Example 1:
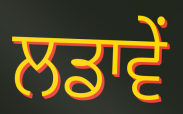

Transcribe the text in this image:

ਲਡਾਵੇਂ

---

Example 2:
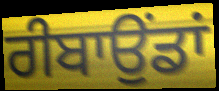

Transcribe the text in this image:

ਰੀਬਾਉਂਡਾਂ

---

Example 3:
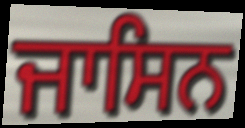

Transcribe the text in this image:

ਜਾਸਿਨ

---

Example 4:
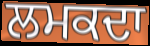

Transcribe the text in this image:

ਲਮਕਦਾ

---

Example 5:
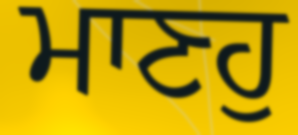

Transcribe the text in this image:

ਮਾਣਹੁ